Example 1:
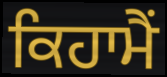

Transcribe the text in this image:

ਕਿਹਾਮੈਂ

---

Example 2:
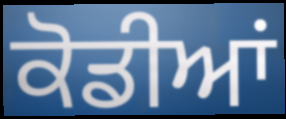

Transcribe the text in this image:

ਕੋਡੀਆਂ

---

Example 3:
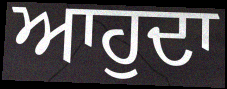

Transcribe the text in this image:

ਆਹੁਦਾ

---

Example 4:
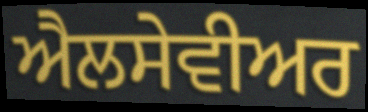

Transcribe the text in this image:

ਐਲਸੇਵੀਅਰ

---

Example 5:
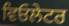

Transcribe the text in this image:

ਵਿਓਲੇਟਰ